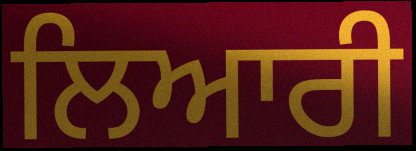
ਲਿਆਰੀ